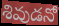
శివుడనో